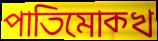
পাতিমোক্খ